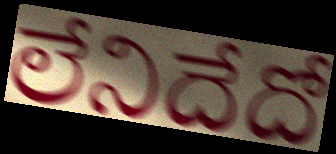
లేనిదేదో